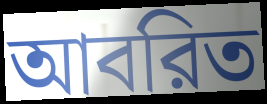
আবরিত